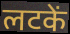
लटकें